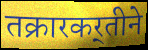
तक्रारकर्तीने